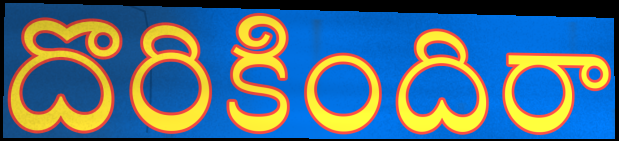
దొరికిందిరా